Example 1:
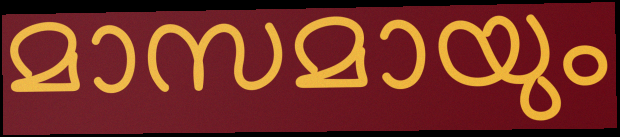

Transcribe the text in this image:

മാസമായും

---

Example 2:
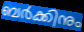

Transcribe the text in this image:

ബർക്കിനും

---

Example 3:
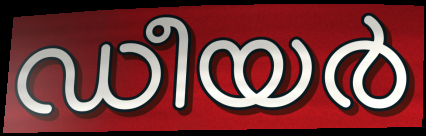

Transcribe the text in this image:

ഡീയർ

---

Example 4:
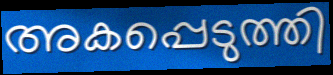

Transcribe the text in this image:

അകപ്പെടുത്തി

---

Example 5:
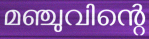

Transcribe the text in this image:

മഞ്ചുവിന്റെ